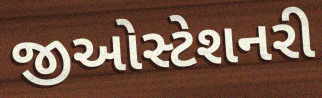
જીઓસ્ટેશનરી